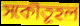
সকৌতূহল